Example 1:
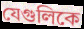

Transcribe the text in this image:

যেগুলিকে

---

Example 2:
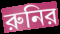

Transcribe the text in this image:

রুনির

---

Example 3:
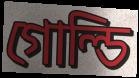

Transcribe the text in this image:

গোল্ডি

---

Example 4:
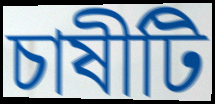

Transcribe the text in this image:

চাষীটি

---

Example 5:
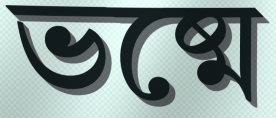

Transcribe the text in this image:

ভষ্মে